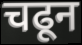
चढून